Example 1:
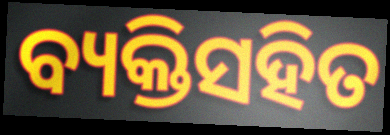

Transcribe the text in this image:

ବ୍ୟକ୍ତିସହିତ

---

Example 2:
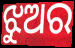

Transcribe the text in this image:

ଝୁଅର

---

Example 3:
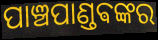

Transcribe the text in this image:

ପାଞ୍ଚପାଣ୍ଡଵଙ୍କର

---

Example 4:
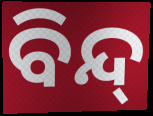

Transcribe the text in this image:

ବିନ୍ଦ୍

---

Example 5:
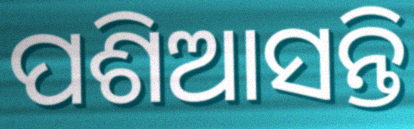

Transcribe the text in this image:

ପଶିଆସନ୍ତି